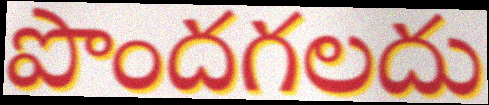
పొందగలదు